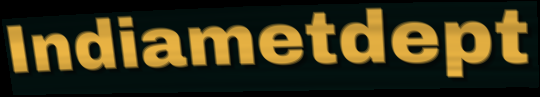
Indiametdept